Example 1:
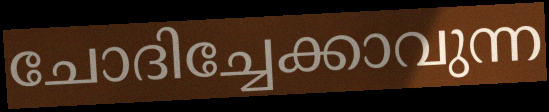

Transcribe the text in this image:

ചോദിച്ചേക്കാവുന്ന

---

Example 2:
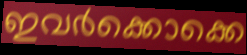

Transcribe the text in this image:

ഇവർക്കൊക്കെ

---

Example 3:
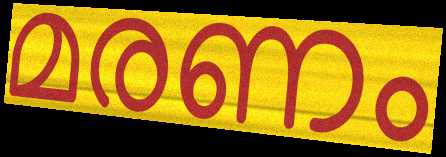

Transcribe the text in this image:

മരണം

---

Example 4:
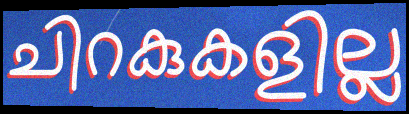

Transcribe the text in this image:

ചിറകുകളില്ല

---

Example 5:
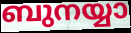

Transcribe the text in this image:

ബുനയ്യാ